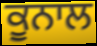
ਕੂਨਾਲ